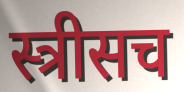
स्त्रीसच